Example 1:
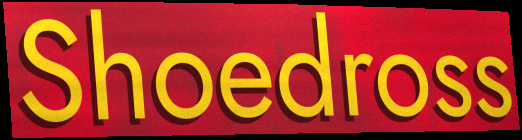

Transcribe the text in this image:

Shoedross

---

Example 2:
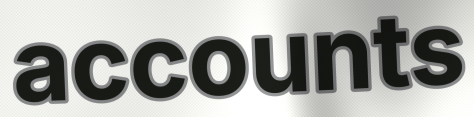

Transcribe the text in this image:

accounts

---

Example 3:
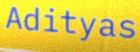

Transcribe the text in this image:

Adityas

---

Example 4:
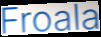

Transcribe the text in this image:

Froala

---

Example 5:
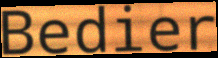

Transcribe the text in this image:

Bedier